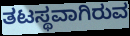
ತಟಸ್ಥವಾಗಿರುವ